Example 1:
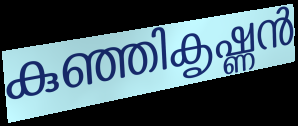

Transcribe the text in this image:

കുഞ്ഞികൃഷ്ണൻ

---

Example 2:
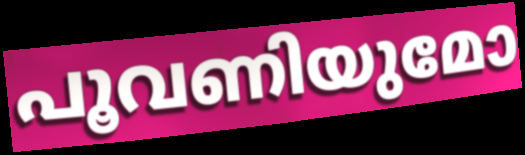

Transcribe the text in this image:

പൂവണിയുമോ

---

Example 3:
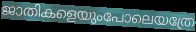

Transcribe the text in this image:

ജാതികളെയുംപോലെയത്രേ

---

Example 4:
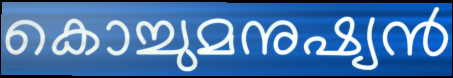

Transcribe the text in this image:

കൊച്ചുമനുഷ്യൻ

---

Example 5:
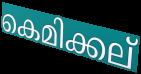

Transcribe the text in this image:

കെമിക്കല്